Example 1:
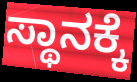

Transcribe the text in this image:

ಸ್ಥಾನಕ್ಕೆ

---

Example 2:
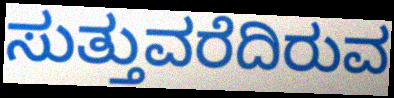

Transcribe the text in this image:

ಸುತ್ತುವರೆದಿರುವ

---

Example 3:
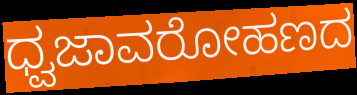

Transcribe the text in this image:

ಧ್ವಜಾವರೋಹಣದ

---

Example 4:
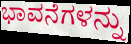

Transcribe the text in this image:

ಭಾವನೆಗಳನ್ನು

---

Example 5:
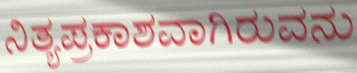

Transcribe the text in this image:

ನಿತ್ಯಪ್ರಕಾಶವಾಗಿರುವನು